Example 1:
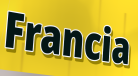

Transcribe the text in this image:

Francia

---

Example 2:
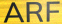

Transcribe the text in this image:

ARF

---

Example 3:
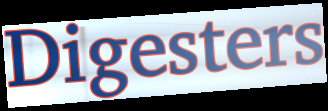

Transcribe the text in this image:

Digesters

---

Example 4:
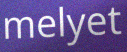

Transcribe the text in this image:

melyet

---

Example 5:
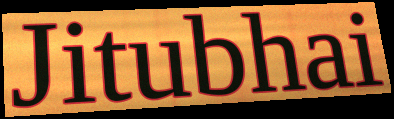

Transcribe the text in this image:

Jitubhai